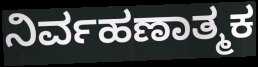
ನಿರ್ವಹಣಾತ್ಮಕ